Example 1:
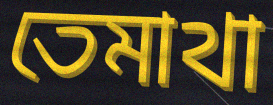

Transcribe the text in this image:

তেমাথা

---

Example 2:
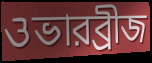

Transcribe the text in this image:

ওভারব্রীজ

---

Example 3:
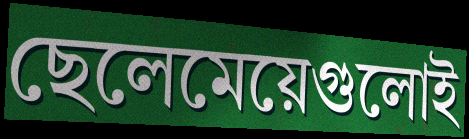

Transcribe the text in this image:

ছেলেমেয়েগুলোই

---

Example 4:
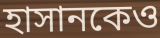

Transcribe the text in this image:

হাসানকেও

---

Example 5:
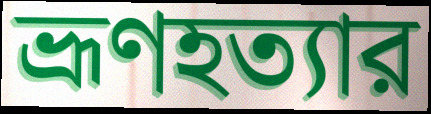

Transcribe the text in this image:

ভ্রূণহত্যার